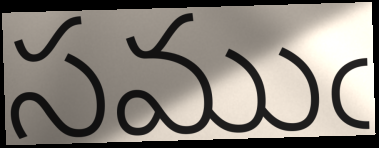
సముఁ